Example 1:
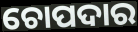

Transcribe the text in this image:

ଚୋପଦାର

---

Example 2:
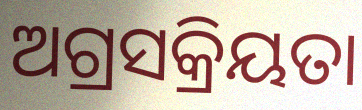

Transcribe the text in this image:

ଅଗ୍ରସକ୍ରିୟତା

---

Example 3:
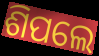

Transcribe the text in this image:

ଶିପଲେ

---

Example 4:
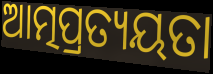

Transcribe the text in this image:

ଆତ୍ମପ୍ରତ୍ୟୟତା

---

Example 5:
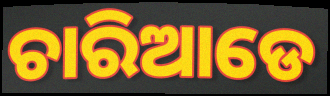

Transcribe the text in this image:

ଚାରିଆଡେ